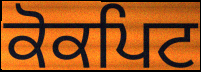
ਕੋਕਪਿਟ